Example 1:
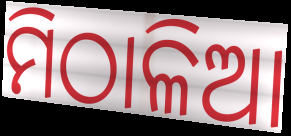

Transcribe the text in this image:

ମିଠାଳିଆ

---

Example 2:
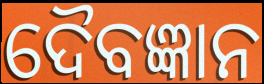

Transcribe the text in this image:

ଦୈବଜ୍ଞାନ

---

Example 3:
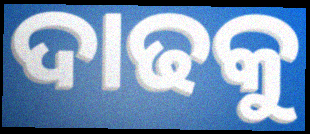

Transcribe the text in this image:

ଦାଢକୁ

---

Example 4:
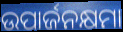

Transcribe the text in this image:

ଉପାର୍ଜନକ୍ଷମା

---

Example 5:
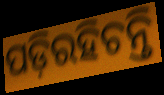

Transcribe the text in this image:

ପଡ଼ିରହିଚନ୍ତି